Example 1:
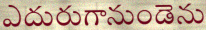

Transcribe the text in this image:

ఎదురుగానుండెను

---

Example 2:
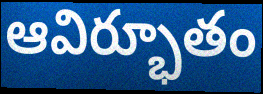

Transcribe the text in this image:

ఆవిర్భూతం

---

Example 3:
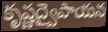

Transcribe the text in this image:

కృష్ణద్వైపాయన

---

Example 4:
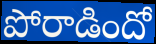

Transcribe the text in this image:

పోరాడిందో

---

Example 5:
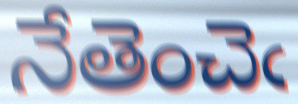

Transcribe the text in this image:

నేతెంచెఁ